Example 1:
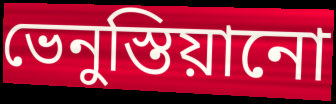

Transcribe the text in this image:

ভেনুস্তিয়ানো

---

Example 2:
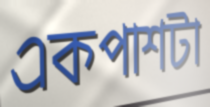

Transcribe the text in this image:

একপাশটা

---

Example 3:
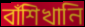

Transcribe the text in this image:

বাঁশিখানি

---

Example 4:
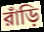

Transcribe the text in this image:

রাঁড়ি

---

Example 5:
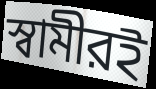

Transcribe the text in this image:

স্বামীরই